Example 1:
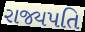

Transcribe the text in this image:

રાજ્યપતિ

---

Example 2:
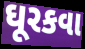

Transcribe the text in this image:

ઘૂરકવા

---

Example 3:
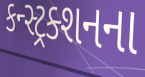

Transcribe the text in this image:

કન્સ્ટ્રક્શનના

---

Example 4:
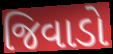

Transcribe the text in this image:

જિવાડો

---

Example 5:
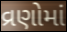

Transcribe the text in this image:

વ્રણોમાં